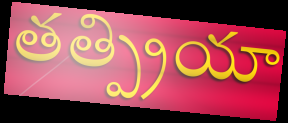
తత్ప్రియా